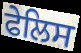
ਫੇਲਿਸ